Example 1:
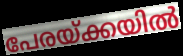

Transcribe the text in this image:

പേരയ്ക്കയിൽ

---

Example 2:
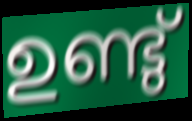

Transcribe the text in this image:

ഉണ്ടു്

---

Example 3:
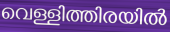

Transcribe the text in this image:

വെള്ളിത്തിരയിൽ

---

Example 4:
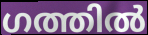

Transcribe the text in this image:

ഗത്തിൽ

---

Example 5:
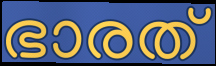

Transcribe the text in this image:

ഭാരത്